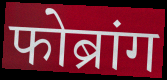
फोब्रांग